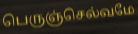
பெருஞ்செல்வமே